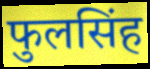
फुलसिंह